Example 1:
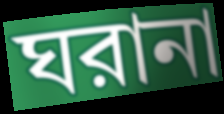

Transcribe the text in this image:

ঘরানা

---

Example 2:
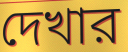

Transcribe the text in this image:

দেখার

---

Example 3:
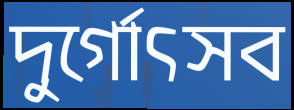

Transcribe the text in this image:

দুর্গোৎসব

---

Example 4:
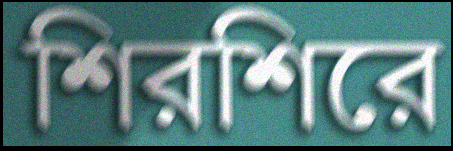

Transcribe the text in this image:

শিরশিরে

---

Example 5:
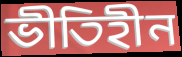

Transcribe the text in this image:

ভীতিহীন